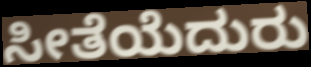
ಸೀತೆಯೆದುರು